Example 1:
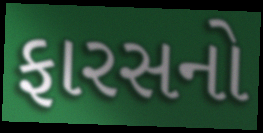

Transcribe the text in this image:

ફારસનો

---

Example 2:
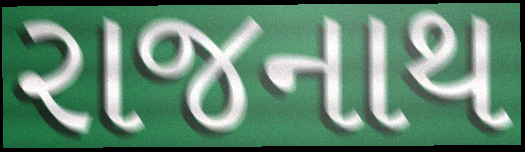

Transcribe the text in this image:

રાજનાથ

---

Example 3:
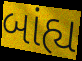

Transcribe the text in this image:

બાંહ્ય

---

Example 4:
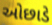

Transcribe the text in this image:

ઓછાડે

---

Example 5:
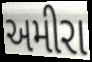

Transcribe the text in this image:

અમીરા